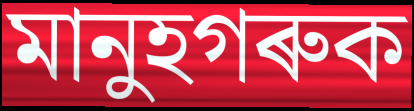
মানুহগৰুক